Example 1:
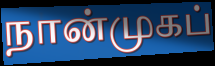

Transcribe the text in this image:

நான்முகப்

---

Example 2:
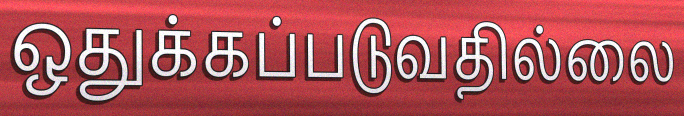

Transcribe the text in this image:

ஒதுக்கப்படுவதில்லை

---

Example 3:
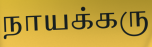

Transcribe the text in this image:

நாயக்கரு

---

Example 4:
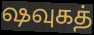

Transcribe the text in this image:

ஷவுகத்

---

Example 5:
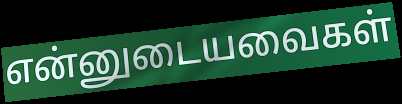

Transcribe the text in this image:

என்னுடையவைகள்